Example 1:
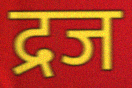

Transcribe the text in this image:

द्रज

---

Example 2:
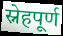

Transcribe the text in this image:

स्नेहपूर्ण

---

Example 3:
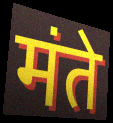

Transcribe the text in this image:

मंते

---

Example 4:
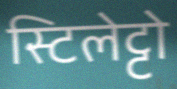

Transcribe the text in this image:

स्टिलेट्टो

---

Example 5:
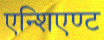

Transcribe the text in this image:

एन्शिएण्ट